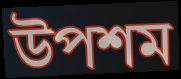
উপশম